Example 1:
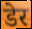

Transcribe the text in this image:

डेर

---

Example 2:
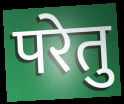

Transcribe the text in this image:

परेतु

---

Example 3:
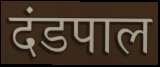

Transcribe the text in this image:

दंडपाल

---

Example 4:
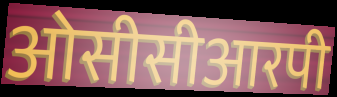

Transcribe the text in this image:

ओसीसीआरपी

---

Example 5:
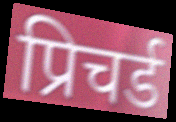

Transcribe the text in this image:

प्रिचर्ड